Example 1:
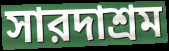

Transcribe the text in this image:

সারদাশ্রম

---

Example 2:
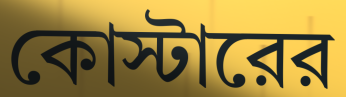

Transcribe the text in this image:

কোস্টারের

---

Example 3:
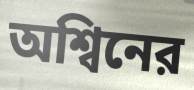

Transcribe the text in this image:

অশ্বিনের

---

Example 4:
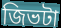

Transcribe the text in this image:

জিভটা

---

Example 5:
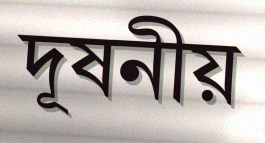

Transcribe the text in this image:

দূষনীয়